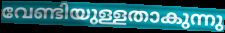
വേണ്ടിയുള്ളതാകുന്നു